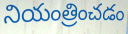
నియంత్రించడం